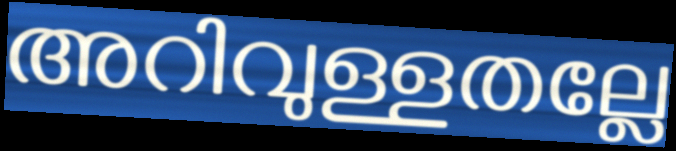
അറിവുള്ളതല്ലേ